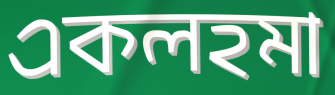
একলহমা